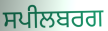
ਸਪੀਲਬਰਗ